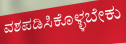
ವಶಪಡಿಸಿಕೊಳ್ಳಬೇಕು